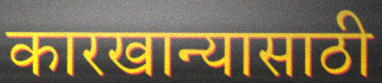
कारखान्यासाठी